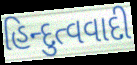
હિન્દુત્વવાદી